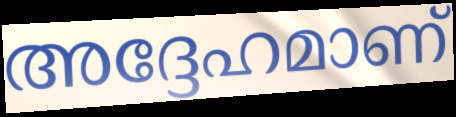
അദ്ദേഹമാണ്